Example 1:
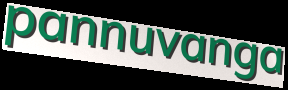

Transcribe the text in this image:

pannuvanga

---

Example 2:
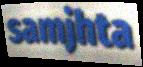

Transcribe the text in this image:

samjhta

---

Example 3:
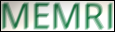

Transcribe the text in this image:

MEMRI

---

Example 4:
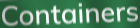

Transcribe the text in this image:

Containers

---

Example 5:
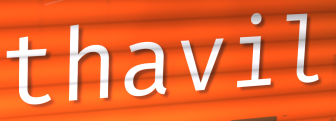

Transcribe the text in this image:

thavil